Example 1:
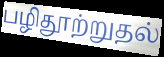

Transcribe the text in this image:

பழிதூற்றுதல்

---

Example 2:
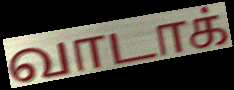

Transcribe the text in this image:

வாடாக்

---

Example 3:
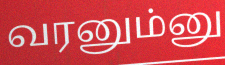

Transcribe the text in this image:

வரனும்னு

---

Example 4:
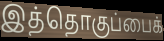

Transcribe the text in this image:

இத்தொகுப்பைக்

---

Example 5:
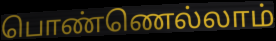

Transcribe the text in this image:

பொண்ணெல்லாம்